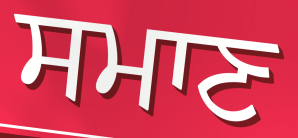
ਸਮਾਣ